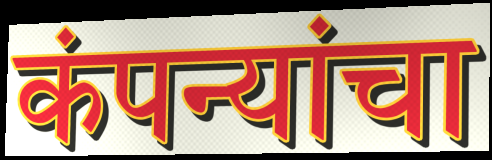
कंपन्यांचा